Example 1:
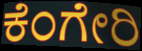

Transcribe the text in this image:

ಕೆಂಗೇರಿ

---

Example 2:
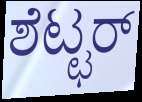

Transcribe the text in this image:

ಶೆಟ್ಟರ್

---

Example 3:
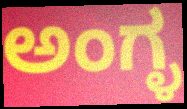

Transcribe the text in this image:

ಅಂಗ್ಳ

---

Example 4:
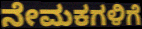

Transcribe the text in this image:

ನೇಮಕಗಳಿಗೆ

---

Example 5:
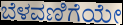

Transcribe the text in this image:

ಬೆಳವಣಿಗೆಯೇ